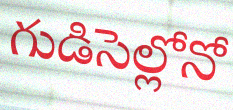
గుడిసెల్లోనో